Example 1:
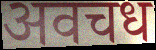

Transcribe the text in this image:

अवचध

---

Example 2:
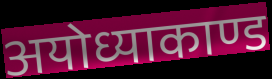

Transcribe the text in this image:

अयोध्याकाण्ड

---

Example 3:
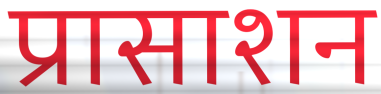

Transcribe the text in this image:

प्रासाशन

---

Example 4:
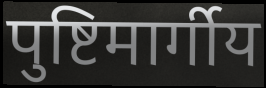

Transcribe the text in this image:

पुष्टिमार्गीय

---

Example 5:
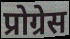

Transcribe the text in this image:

प्रोग्रेस